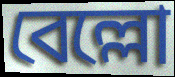
বেল্লো